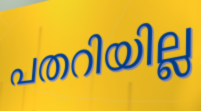
പതറിയില്ല